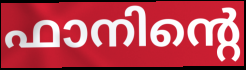
ഫാനിന്റെ